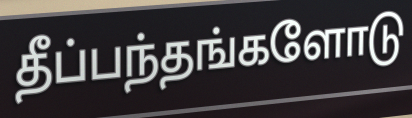
தீப்பந்தங்களோடு